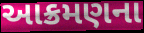
આક્રમણના